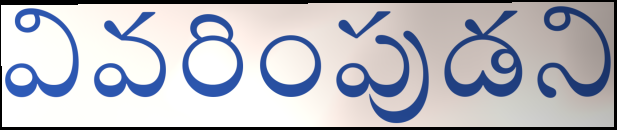
వివరింపుడని